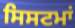
ਸਿਸਟਮਾਂ